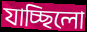
যাচ্ছিলো